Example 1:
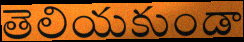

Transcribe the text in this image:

తెలియకుండా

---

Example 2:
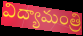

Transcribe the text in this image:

విద్యామంత్రి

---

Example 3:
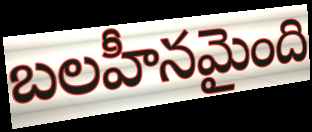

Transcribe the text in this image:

బలహీనమైంది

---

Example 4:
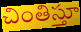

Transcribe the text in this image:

చింతిస్తూ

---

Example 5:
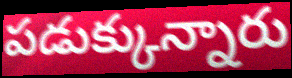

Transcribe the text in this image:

పడుక్కున్నారు